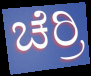
ಚೆರ‍್ರಿ